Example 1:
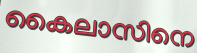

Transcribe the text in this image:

കൈലാസിനെ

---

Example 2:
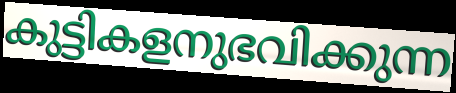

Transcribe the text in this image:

കുട്ടികളനുഭവിക്കുന്ന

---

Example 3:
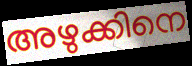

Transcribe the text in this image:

അഴുക്കിനെ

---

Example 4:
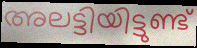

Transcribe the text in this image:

അലട്ടിയിട്ടുണ്ട്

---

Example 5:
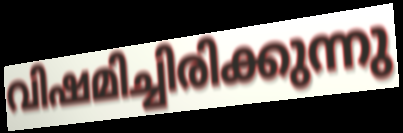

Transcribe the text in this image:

വിഷമിച്ചിരിക്കുന്നു